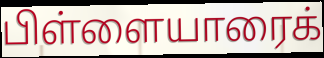
பிள்ளையாரைக்